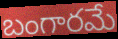
బంగారమే